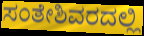
ಸಂತೇಶಿವರದಲ್ಲಿ